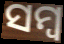
ସମ୍ବ